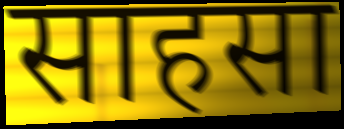
साहसा